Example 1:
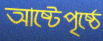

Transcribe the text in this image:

আষ্টেপৃষ্ঠে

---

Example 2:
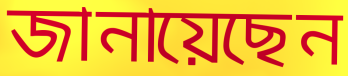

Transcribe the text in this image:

জানায়েছেন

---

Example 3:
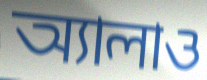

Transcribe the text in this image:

অ্যালাও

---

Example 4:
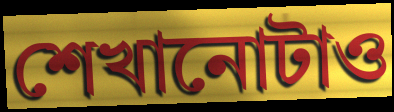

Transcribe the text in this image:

শেখানোটাও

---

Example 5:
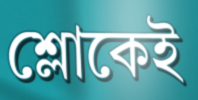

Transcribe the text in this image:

শ্লোকেই